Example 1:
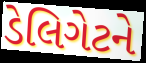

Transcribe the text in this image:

ડેલિગેટને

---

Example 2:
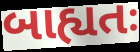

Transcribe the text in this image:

બાહ્યતઃ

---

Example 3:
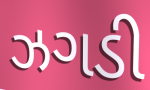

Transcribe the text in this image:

ઝગડી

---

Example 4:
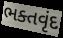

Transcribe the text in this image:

ભક્તવૃંદ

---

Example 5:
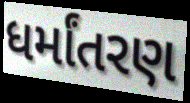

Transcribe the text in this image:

ધર્માંતરણ